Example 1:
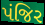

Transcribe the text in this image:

પંજિર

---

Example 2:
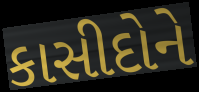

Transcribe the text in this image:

કાસીદોને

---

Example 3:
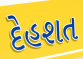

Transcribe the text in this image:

દેહશત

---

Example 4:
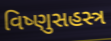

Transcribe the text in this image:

વિષ્ણુસહસ્ત્ર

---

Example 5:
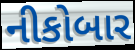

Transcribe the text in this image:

નીકોબાર